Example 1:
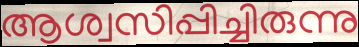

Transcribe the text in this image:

ആശ്വസിപ്പിച്ചിരുന്നു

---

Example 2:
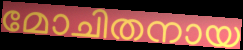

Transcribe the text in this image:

മോചിതനായ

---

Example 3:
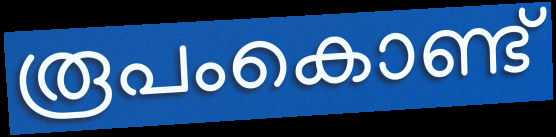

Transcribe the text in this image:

രൂപംകൊണ്ട്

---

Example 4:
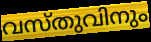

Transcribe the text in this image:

വസ്തുവിനും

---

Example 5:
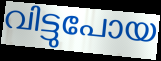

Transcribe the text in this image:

വിട്ടുപോയ